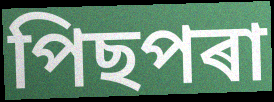
পিছপৰা